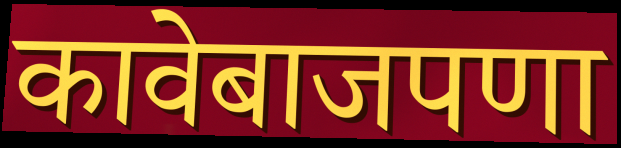
कावेबाजपणा